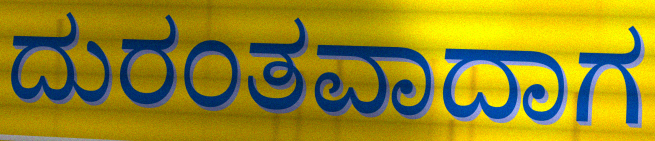
ದುರಂತವಾದಾಗ